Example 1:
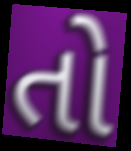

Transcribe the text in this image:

તો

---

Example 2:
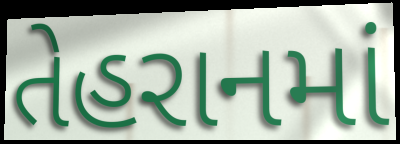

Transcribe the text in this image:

તેહરાનમાં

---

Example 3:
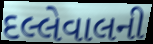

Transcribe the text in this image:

દલ્લેવાલની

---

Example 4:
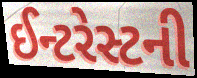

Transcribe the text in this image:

ઈન્ટરેસ્ટની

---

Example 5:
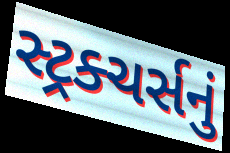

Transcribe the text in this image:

સ્ટ્રક્ચર્સનું